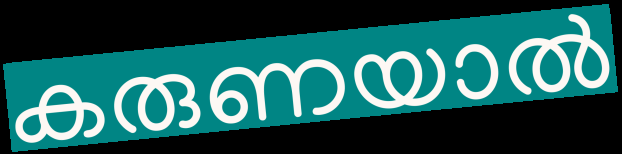
കരുണയാൽ